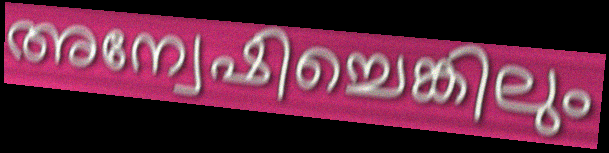
അന്വേഷിച്ചെങ്കിലും